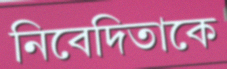
নিবেদিতাকে